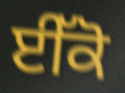
ਈੱਕੋ